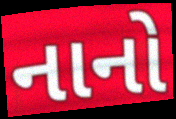
નાનો